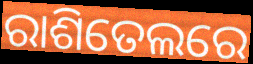
ରାଶିତେଲରେ